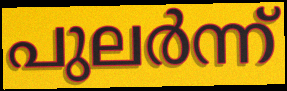
പുലർന്ന്